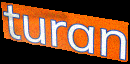
turan